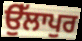
ਉੱਲਾਪੁਰ